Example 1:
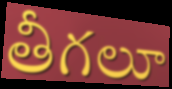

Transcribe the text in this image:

తీగలూ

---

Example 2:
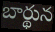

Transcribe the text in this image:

బార్థున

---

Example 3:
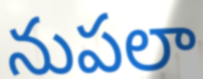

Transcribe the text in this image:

నుపలా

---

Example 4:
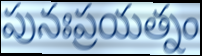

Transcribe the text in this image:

పునఃప్రయత్నం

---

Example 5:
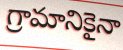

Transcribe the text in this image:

గ్రామానికైనా